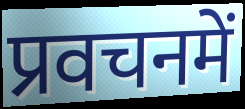
प्रवचनमें